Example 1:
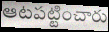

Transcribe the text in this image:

ఆటపట్టించారు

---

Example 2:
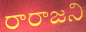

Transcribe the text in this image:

రారాజని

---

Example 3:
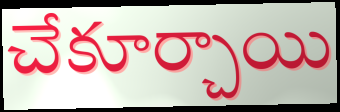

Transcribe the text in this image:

చేకూర్చాయి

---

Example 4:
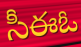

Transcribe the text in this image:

సీఈఓ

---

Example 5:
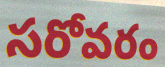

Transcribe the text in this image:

సరోవరం